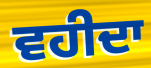
ਵਹੀਦਾ